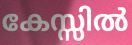
കേസ്സിൽ